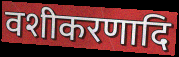
वशीकरणादि